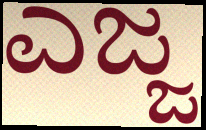
ಎಜ್ಜ